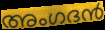
അംഗദൻ